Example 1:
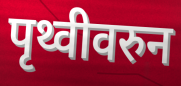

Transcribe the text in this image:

पृथ्वीवरुन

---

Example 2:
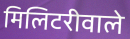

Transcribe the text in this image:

मिलिटरीवाले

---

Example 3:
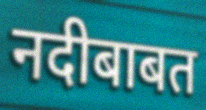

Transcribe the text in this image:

नदीबाबत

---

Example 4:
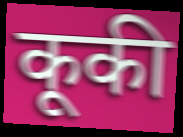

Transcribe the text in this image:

कूकी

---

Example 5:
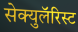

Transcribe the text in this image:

सेक्युलॅरिस्ट